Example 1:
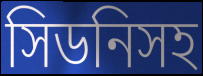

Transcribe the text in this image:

সিডনিসহ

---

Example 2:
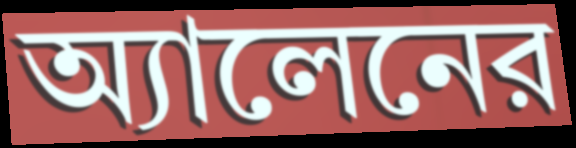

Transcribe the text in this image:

অ্যালেনের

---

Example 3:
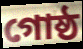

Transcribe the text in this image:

গোষ্ঠ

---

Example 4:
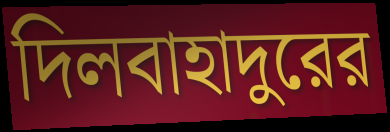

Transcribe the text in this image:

দিলবাহাদুরের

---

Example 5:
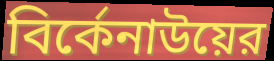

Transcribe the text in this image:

বির্কেনাউয়ের